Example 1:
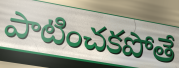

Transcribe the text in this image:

పాటించకపోతే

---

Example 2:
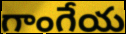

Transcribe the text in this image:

గాంగేయ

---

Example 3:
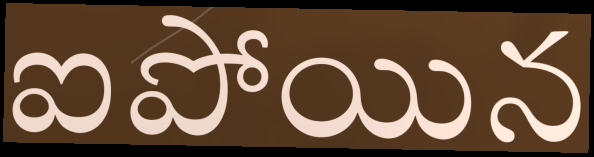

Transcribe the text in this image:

ఐపోయిన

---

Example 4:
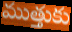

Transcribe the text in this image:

ముత్తుకు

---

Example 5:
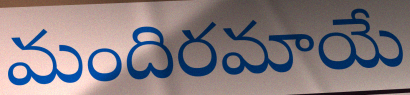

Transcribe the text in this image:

మందిరమాయే